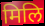
मिलि